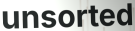
unsorted